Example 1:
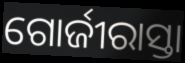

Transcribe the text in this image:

ଗୋର୍ଜୀରାସ୍ତା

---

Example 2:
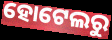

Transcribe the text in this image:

ହୋଟେଲରୁ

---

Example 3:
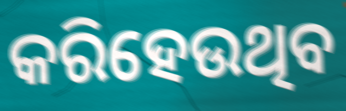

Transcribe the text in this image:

କରିହେଉଥିବ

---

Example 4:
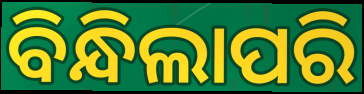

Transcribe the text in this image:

ବିନ୍ଧିଲାପରି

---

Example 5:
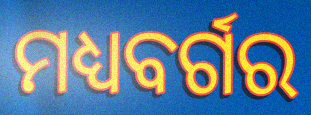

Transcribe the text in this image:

ମଧ୍ୟବର୍ଗର